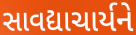
સાવદ્યાચાર્યને